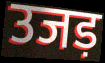
उजड़